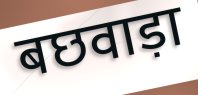
बछवाड़ा